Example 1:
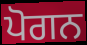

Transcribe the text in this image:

ਪੋਗਨ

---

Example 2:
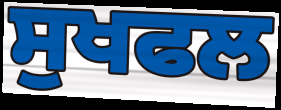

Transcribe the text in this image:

ਸੁਖਫਲ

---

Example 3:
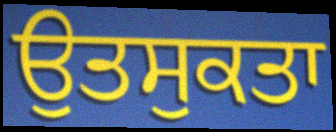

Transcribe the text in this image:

ਉਤਸੁਕਤਾ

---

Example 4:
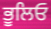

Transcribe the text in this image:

ਭੂਲਿਓ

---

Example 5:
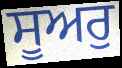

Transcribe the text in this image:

ਸੂਅਰੁ